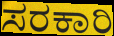
ಸರಕಾರಿ